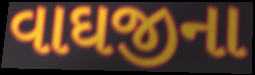
વાઘજીના